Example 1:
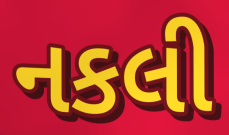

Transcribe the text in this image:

નકલી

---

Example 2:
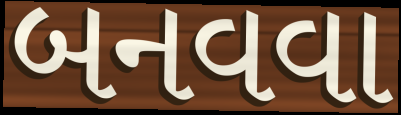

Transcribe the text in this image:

બનવવા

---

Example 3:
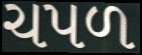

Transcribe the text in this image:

ચપળ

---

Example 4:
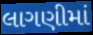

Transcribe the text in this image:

લાગણીમાં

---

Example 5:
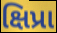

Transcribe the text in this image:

ક્ષિપ્રા